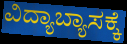
ವಿದ್ಯಾಬ್ಯಾಸಕ್ಕೆ